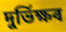
দুৰ্ভিক্ষৰ